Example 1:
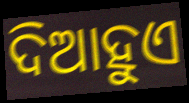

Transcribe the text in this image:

ଦିଆହୁଏ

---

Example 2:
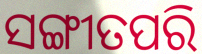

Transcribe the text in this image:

ସଙ୍ଗୀତପରି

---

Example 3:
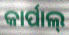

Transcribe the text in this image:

କାର୍ପାଲ୍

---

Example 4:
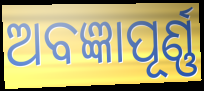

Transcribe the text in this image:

ଅବଜ୍ଞାପୂର୍ଣ୍ଣ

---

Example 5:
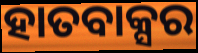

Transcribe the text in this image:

ହାତବାକ୍ସର